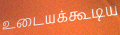
உடையக்கூடிய